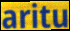
aritu